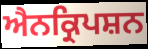
ਐਨਕ੍ਰਿਪਸ਼ਨ